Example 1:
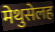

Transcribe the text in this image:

मेथुसेलह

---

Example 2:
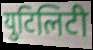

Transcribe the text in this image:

युटिलिटी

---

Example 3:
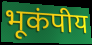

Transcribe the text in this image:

भूकंपीय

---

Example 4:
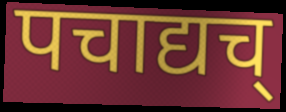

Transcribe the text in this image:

पचाद्यच्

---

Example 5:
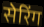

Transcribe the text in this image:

सेरिंग